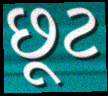
છૂટ